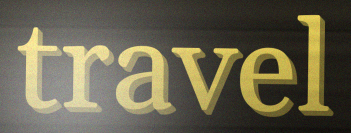
travel